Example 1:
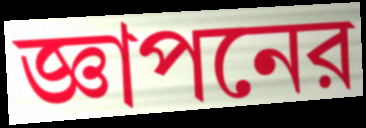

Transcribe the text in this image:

জ্ঞাপনের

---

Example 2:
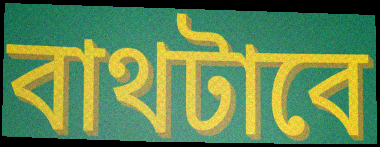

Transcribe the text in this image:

বাথটাবে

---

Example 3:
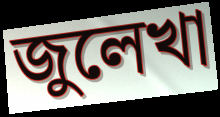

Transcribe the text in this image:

জুলেখা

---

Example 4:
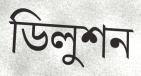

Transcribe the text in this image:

ডিলুশন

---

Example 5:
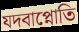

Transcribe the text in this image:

যদবাপ্নোতি